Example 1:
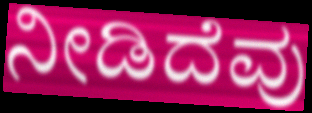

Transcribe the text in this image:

ನೀಡಿದೆವು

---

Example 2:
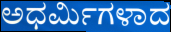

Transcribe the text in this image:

ಅಧರ್ಮಿಗಳಾದ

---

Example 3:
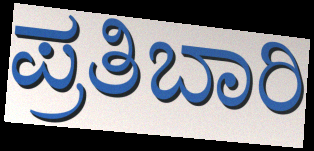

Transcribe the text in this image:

ಪ್ರತಿಬಾರಿ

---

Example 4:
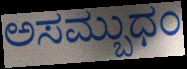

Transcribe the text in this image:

ಅಸಮ್ಬುಧಂ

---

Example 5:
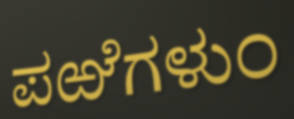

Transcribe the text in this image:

ಪಱೆಗಳುಂ